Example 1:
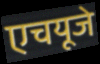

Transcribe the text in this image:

एचयूजे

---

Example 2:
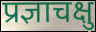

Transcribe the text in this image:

प्रज्ञाचक्षु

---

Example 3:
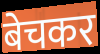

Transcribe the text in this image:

बेचकर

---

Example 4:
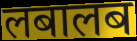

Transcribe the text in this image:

लबालब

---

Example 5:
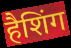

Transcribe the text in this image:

हैशिंग